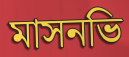
মাসনভি